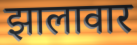
झालावार